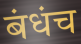
बंधंच